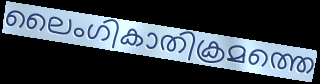
ലൈംഗികാതിക്രമത്തെ